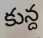
కున్ద